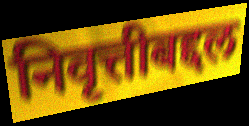
निवृत्तीबद्दल